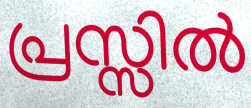
പ്രസ്സിൽ